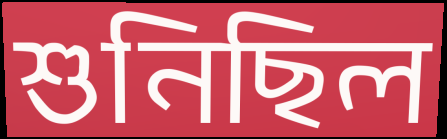
শুনিছিল